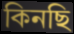
কিনছি